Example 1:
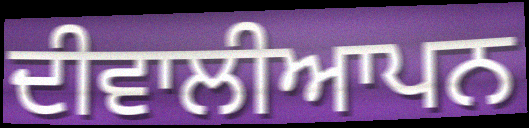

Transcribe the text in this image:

ਦੀਵਾਲੀਆਪਨ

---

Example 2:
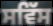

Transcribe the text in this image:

ਸਵਿੱਸ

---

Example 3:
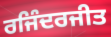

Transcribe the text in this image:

ਰਜਿੰਦਰਜੀਤ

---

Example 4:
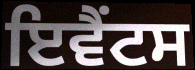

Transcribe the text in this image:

ਇਵੈਂਟਸ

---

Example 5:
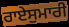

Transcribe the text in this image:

ਰਾਏਸੁਮਾਰੀ